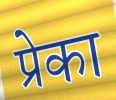
प्रेका